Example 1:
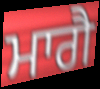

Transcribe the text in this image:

ਮਾਗੈ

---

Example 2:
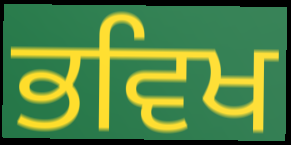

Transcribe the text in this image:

ਭਵਿਖ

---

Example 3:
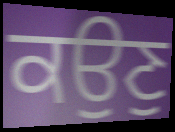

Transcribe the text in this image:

ਕਉਣੁ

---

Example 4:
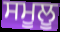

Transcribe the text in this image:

ਸਮੂਲੂ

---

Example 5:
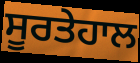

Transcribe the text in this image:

ਸੂਰਤੇਹਾਲ